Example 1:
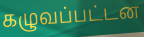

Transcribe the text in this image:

கழுவப்பட்டன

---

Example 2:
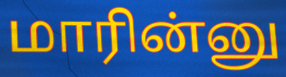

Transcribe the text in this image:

மாரின்னு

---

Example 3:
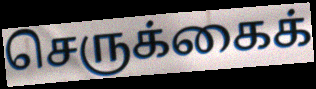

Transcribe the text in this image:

செருக்கைக்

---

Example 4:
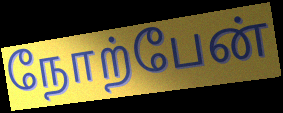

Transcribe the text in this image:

நோற்பேன்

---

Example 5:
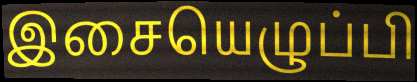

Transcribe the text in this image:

இசையெழுப்பி